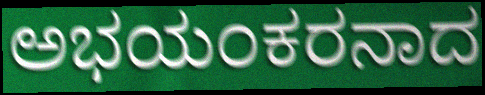
ಅಭಯಂಕರನಾದ